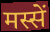
मस्सें